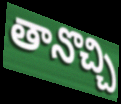
తానొచ్చి